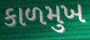
કાળમુખ